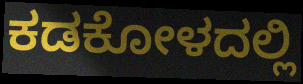
ಕಡಕೋಳದಲ್ಲಿ